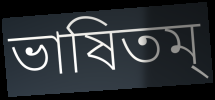
ভাষিতম্